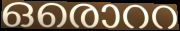
ഒരൊററ